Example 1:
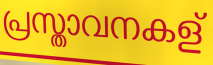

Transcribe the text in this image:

പ്രസ്താവനകള്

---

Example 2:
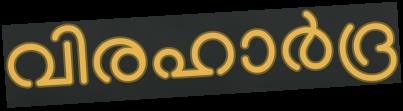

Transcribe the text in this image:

വിരഹാർദ്ര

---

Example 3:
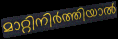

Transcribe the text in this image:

മാറ്റിനിർത്തിയാൽ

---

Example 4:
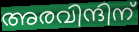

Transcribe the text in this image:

അരവിന്ദിന്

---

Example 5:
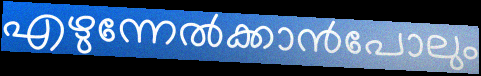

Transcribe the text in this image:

എഴുന്നേൽക്കാൻപോലും